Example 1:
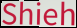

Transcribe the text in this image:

Shieh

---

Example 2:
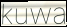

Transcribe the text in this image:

kuwa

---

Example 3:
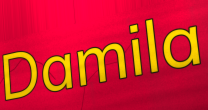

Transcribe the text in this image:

Damila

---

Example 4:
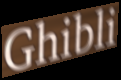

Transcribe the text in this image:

Ghibli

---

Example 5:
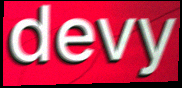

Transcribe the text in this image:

devy